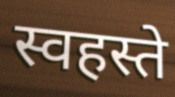
स्वहस्ते